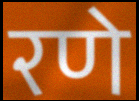
रणे